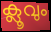
ക്ലൂവും